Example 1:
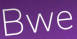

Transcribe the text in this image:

Bwe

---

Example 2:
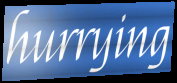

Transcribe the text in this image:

hurrying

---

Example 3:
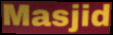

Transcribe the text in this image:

Masjid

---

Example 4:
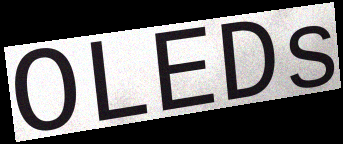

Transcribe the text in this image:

OLEDs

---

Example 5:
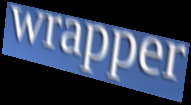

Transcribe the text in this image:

wrapper